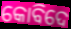
କୋବିଦେ